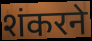
शंकरने